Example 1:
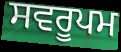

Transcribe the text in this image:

ਸਵਰੂਪਮ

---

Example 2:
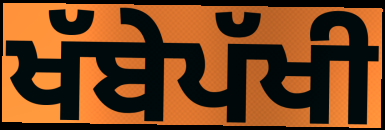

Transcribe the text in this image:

ਖੱਬੇਪੱਖੀ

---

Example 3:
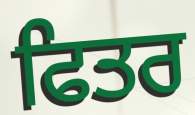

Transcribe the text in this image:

ਫਿਤਰ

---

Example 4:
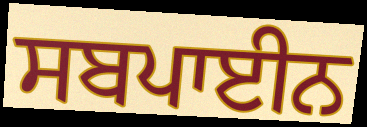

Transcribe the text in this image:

ਸਬਪਾਈਨ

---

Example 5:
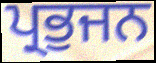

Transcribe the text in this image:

ਪ੍ਰਭੁਜਨ